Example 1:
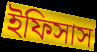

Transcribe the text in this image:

ইফিসাস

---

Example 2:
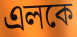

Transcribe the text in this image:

এলকে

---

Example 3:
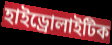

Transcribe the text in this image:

হাইড্রোলাইটিক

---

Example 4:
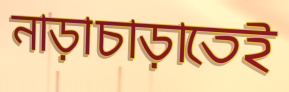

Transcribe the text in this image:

নাড়াচাড়াতেই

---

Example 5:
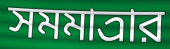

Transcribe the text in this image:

সমমাত্রার